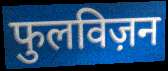
फुलविज़न